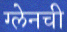
ग्लेनची